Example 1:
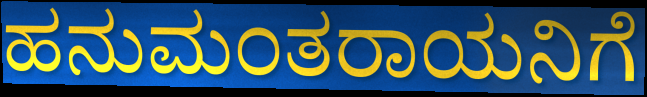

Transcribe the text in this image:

ಹನುಮಂತರಾಯನಿಗೆ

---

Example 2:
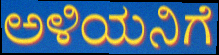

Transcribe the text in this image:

ಅಳಿಯನಿಗೆ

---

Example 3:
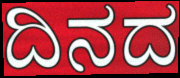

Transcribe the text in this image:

ದಿನದ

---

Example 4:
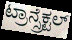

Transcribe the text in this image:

ಟ್ರಾನ್ಸ್ರೆಕ್ಟಲ್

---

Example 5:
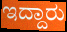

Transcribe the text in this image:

ಇದ್ದಾರು